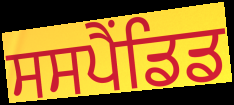
ਸਸਪੈਂਡਿਡ